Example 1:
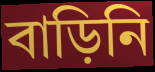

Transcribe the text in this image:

বাড়িনি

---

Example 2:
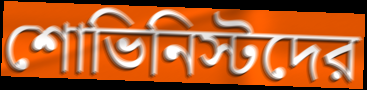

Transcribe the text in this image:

শোভিনিস্টদের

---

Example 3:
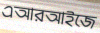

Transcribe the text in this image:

এআরআইজে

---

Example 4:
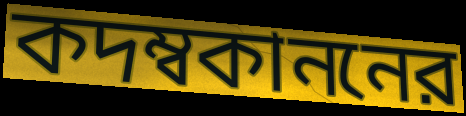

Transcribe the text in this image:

কদম্বকাননের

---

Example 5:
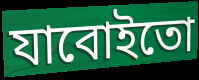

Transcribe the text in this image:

যাবোইতো